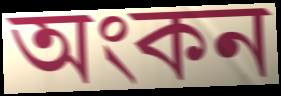
অংকন